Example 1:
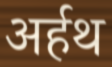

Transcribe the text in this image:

अर्हथ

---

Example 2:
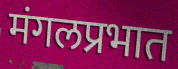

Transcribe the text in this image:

मंगलप्रभात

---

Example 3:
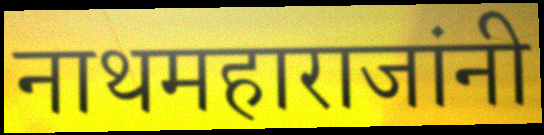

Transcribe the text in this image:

नाथमहाराजांनी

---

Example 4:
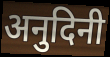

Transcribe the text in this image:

अनुदिनी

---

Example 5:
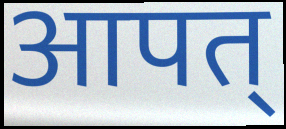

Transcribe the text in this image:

आपत्